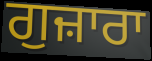
ਗੁਜ਼ਾਰਾ